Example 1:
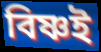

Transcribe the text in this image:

বিষ্ণই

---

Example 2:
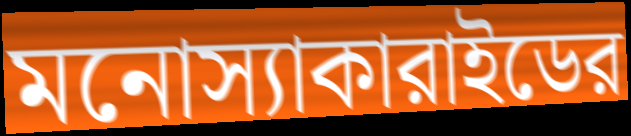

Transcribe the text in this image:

মনোস্যাকারাইডের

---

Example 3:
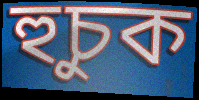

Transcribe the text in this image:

হুচুক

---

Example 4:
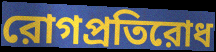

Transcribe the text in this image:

রোগপ্রতিরোধ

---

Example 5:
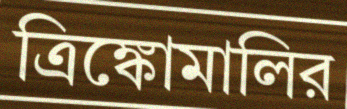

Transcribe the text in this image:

ত্রিঙ্কোমালির